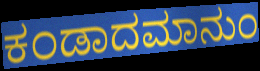
ಕಂಡಾದಮಾನುಂ